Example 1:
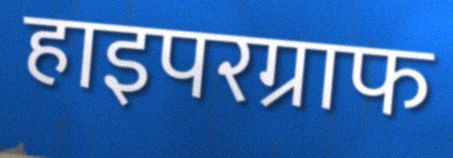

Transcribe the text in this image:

हाइपरग्राफ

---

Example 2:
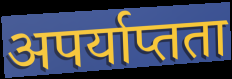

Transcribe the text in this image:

अपर्याप्‍तता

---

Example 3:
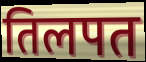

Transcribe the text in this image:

तिलपत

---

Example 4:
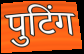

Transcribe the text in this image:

पुटिंग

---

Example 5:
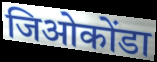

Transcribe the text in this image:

जिओकोंडा